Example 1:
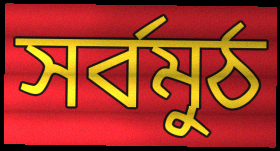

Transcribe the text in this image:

সৰ্বমুঠ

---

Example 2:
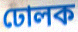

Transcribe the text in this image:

ঢোলক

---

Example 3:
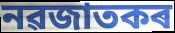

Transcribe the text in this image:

নৱজাতকৰ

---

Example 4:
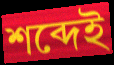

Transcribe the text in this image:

শব্দেই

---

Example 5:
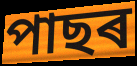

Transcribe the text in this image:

পাছৰ